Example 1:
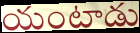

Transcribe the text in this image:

యంటాడు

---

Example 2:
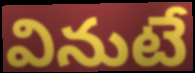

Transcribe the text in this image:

వినుటే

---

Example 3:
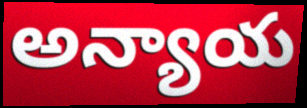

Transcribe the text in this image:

అన్యాయ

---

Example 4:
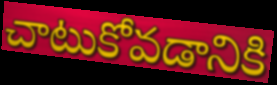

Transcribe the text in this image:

చాటుకోవడానికి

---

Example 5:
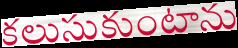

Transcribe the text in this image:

కలుసుకుంటాను